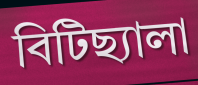
বিটিছ্যালা